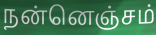
நன்னெஞ்சம்